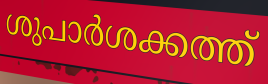
ശുപാർശക്കത്ത്